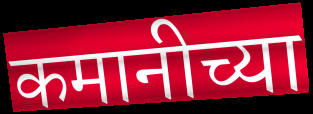
कमानीच्या